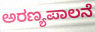
ಅರಣ್ಯಪಾಲನೆ